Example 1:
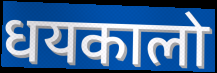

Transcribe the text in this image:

धयकालो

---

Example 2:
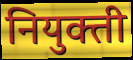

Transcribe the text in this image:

नियुक्ती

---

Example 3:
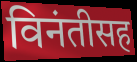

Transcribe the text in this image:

विनंतीसह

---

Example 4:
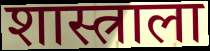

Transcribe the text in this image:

शास्त्राला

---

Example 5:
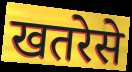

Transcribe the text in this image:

खतरेसे